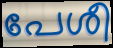
പേശീ